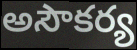
అసౌకర్య